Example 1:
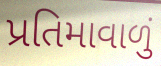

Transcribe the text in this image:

પ્રતિમાવાળું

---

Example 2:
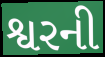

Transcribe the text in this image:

શ્વરની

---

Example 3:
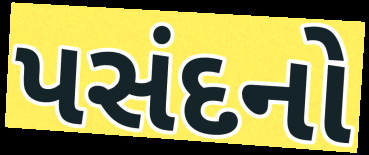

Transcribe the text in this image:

પસંદનો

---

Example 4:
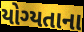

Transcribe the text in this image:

યોગ્યતાના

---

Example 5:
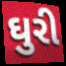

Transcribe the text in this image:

ઘુરી